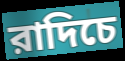
রাদিচে